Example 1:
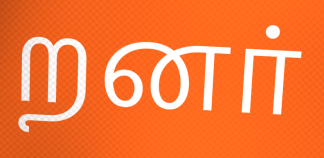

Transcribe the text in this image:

றனர்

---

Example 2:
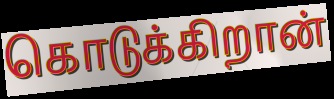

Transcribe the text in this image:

கொடுக்கிறான்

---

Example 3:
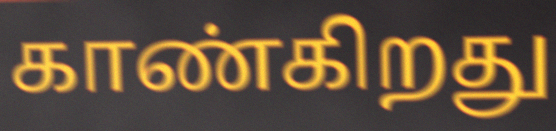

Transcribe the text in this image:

காண்கிறது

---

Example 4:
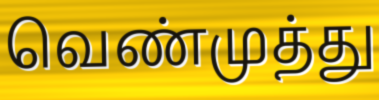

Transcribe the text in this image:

வெண்முத்து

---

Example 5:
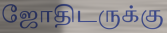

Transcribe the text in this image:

ஜோதிடருக்கு